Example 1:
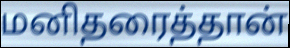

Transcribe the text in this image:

மனிதரைத்தான்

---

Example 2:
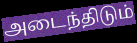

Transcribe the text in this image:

அடைந்திடும்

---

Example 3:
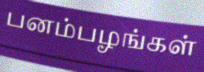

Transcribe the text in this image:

பனம்பழங்கள்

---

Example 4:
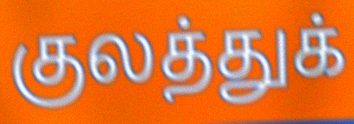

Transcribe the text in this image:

குலத்துக்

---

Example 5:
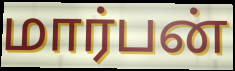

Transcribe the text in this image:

மார்பன்